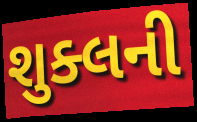
શુક્લની